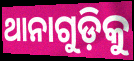
ଥାନାଗୁଡ଼ିକୁ